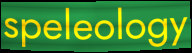
speleology